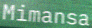
Mimansa